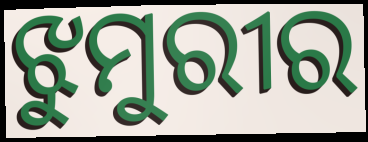
ଝୁମୁରୀର